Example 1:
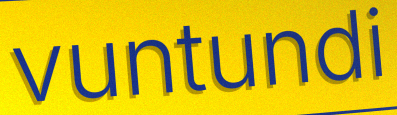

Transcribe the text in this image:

vuntundi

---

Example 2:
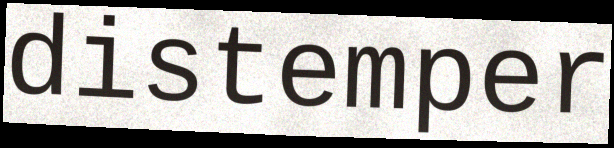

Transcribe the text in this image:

distemper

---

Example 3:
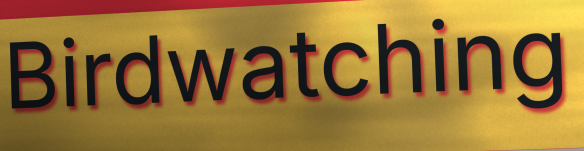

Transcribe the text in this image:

Birdwatching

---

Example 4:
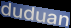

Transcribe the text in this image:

duduan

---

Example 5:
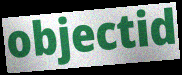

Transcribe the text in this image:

objectid